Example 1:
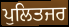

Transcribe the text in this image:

ਪੁਲਿਤਜਰ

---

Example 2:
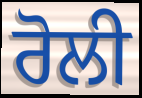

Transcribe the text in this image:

ਰੋਲੀ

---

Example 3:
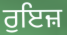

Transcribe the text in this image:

ਰੁਇਜ਼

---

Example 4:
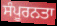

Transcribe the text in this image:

ਸੰਪੂਰਨਤਾ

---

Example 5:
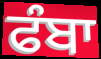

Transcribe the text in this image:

ਫੰਬਾ